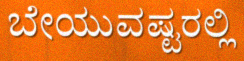
ಬೇಯುವಷ್ಟರಲ್ಲಿ